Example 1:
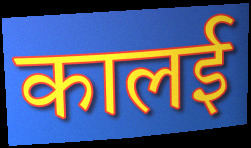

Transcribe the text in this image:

कालई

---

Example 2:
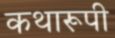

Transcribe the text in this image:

कथारूपी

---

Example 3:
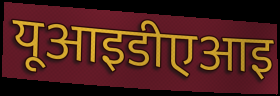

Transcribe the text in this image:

यूआइडीएआइ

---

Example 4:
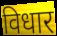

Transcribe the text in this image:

विधार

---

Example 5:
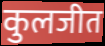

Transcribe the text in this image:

कुलजीत